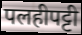
पलहीपट्टी